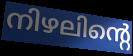
നിഴലിന്റെ